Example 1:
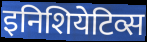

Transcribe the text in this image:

इनिशियेटिव्स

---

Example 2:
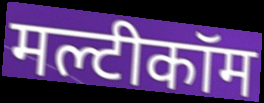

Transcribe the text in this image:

मल्टीकॉम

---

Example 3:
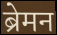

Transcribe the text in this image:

ब्रेमन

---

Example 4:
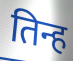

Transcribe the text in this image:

तिन्ह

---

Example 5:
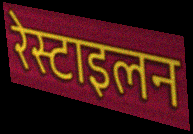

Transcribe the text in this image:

रेस्टाइलन